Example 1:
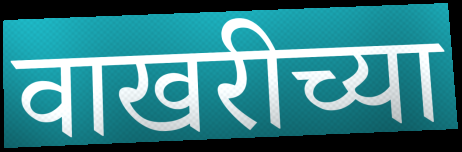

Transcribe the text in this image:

वाखरीच्या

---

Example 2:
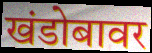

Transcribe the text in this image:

खंडोबावर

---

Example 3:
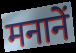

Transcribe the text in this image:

मनानें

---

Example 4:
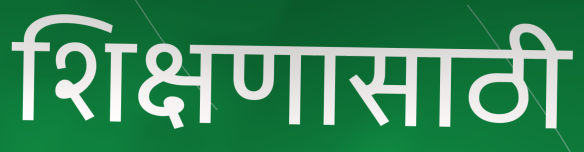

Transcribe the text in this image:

शिक्षणासाठी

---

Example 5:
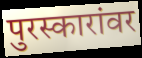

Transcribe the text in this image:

पुरस्कारांवर